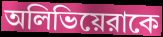
অলিভিয়েরাকে